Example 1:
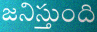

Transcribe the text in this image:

జనిస్తుంది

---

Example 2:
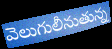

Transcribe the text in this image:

వెలుగులీనుతున్న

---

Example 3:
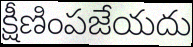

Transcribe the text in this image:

క్షీణింపజేయదు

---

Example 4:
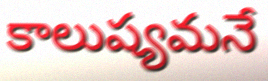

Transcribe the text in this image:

కాలుష్యమనే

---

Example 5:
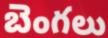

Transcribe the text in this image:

బెంగలు